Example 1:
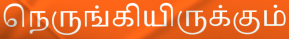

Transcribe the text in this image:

நெருங்கியிருக்கும்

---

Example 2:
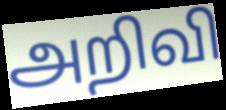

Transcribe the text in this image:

அறிவி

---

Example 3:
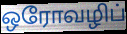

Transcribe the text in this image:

ஒரோவழிப்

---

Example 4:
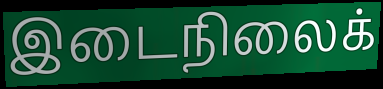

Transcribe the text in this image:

இடைநிலைக்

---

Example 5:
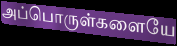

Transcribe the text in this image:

அப்பொருள்களையே